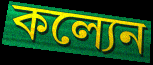
কল্যেন